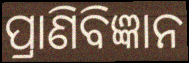
ପ୍ରାଣିବିଜ୍ଞାନ